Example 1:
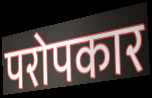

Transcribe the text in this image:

परोपकार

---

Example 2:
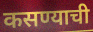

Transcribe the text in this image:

कसण्याची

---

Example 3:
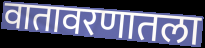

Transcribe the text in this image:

वातावरणातला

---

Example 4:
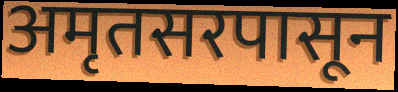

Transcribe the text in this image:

अमृतसरपासून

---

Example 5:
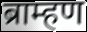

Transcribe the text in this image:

ब्राम्हण